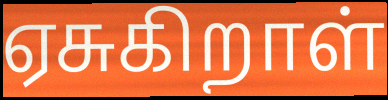
ஏசுகிறாள்